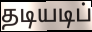
தடியடிப்